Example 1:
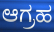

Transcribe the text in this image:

ಆಗ್ರಹ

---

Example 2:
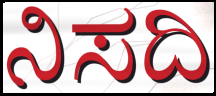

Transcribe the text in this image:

ನಿಸದಿ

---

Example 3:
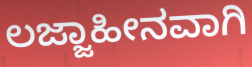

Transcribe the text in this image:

ಲಜ್ಜಾಹೀನವಾಗಿ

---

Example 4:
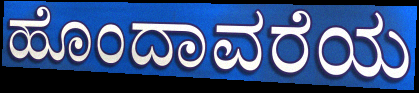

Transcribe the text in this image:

ಹೊಂದಾವರೆಯ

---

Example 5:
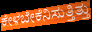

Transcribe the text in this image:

ಕೇಳಬೇಕೆನಿಸುತ್ತಿತ್ತು